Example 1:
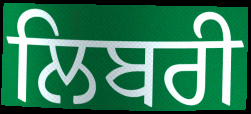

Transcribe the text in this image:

ਲਿਬਰੀ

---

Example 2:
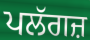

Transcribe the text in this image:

ਪਲੱਗਜ਼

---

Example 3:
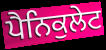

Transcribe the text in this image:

ਪੈਨਿਕੁਲੇਟ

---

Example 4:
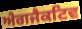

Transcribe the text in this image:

ਐਗਜੈਕਟਿਵ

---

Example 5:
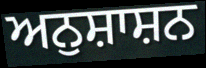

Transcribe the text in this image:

ਅਨੁਸ਼ਾਸ਼ਨ